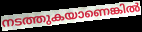
നടത്തുകയാണെങ്കിൽ